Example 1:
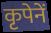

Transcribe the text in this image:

कृपेनें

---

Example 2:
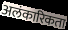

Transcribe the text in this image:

अलंकारिकता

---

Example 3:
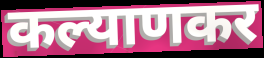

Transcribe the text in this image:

कल्याणकर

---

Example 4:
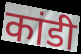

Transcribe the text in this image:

कांडी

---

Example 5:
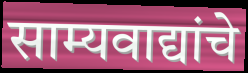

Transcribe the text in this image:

साम्यवाद्यांचे